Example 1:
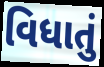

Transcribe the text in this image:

વિધાતું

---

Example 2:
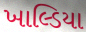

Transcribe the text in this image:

ખાલ્ડિયા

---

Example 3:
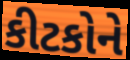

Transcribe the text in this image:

કીટકોને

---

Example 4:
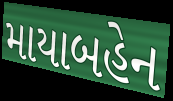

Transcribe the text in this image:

માયાબહેન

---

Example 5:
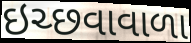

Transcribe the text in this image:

ઇચ્છવાવાળા